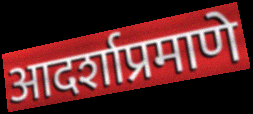
आदर्शाप्रमाणे